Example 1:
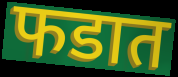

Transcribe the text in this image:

फडात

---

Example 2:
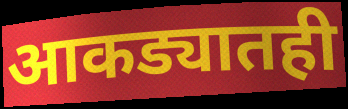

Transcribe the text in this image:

आकड्यातही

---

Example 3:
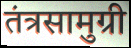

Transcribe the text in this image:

तंत्रसामुग्री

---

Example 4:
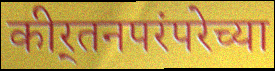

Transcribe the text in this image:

कीर्तनपरंपरेच्या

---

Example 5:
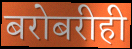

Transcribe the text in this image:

बरोबरीही